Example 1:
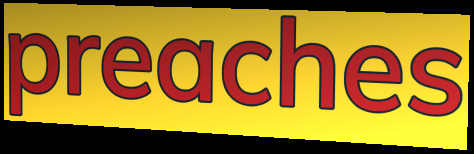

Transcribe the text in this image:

preaches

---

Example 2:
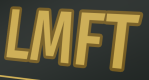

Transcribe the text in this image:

LMFT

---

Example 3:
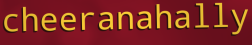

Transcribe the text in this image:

cheeranahally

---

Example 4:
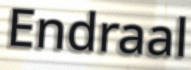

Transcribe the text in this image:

Endraal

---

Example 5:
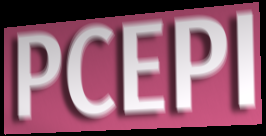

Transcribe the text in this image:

PCEPI